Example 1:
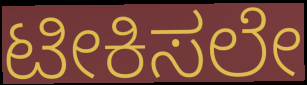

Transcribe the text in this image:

ಟೀಕಿಸಲೇ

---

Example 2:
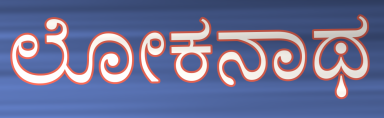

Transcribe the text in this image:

ಲೋಕನಾಥ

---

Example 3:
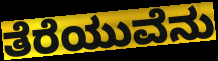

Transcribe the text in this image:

ತೆರೆಯುವೆನು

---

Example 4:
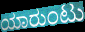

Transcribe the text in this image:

ಯಾರುಂಟು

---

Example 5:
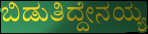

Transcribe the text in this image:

ಬಿಡುತಿದ್ದೇನಯ್ಯ